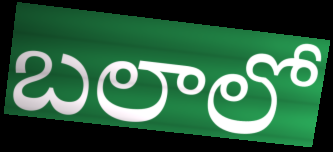
బలాలో